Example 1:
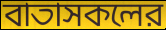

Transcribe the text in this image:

বাতাসকলের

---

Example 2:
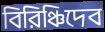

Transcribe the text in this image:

বিরিঞ্চিদেব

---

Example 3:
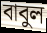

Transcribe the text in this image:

বাবুল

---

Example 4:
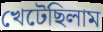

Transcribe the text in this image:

খেটেছিলাম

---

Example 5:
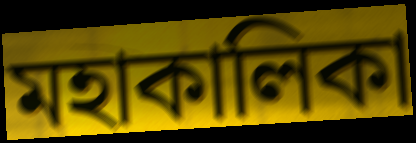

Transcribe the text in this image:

মহাকালিকা